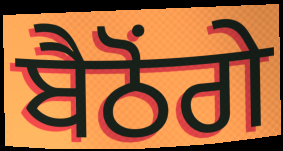
ਬੈਠੋਂਗੇ